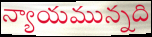
న్యాయమున్నది